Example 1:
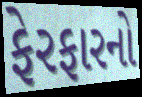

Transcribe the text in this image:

ફેરફારનો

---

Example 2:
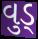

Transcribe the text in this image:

વુડ્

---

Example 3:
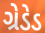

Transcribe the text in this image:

ગ્રેડેડ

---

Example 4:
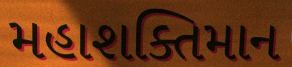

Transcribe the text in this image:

મહાશક્તિમાન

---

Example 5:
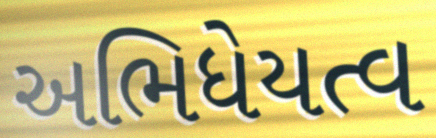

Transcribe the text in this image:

અભિધેયત્વ